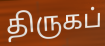
திருகப்